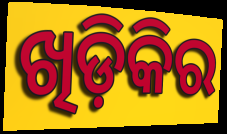
ଖିଡ଼ିକିର